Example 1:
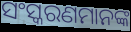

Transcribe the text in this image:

ସଂସ୍କରଣମାନଙ୍କ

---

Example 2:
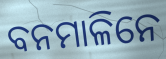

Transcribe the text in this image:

ବନମାଳିନେ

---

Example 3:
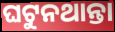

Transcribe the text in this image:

ଘଟୁନଥାନ୍ତା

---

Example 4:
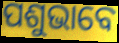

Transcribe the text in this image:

ପଶୁଭାବେ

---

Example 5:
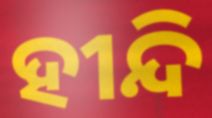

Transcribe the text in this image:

ହୀନ୍ଦି